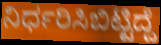
ನಿರ್ಧರಿಸಿಬಿಟ್ಟಿದ್ದೆ